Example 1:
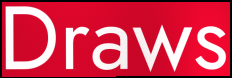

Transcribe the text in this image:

Draws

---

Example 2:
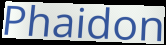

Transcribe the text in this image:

Phaidon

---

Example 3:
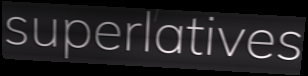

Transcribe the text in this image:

superlatives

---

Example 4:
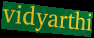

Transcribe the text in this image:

vidyarthi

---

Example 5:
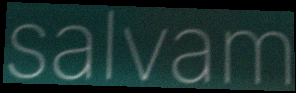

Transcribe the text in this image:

salvam